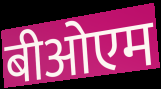
बीओएम